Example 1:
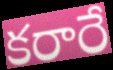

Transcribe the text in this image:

కరారే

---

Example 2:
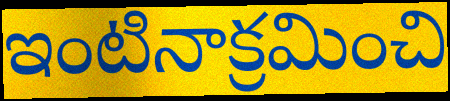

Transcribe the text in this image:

ఇంటినాక్రమించి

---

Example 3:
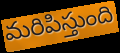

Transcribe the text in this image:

మరిపిస్తుంది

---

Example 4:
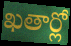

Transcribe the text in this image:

ఖతార్లో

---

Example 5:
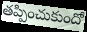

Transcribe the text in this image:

తప్పించుకుందో